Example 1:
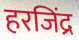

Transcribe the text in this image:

हरजिंद्र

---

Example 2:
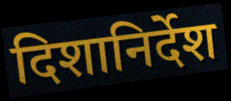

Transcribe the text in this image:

दिशानिर्देश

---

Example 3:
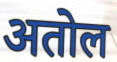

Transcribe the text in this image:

अतोल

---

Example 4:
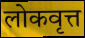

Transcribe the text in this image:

लोकवृत्त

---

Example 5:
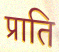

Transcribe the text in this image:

प्राति